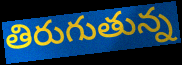
తిరుగుతున్న